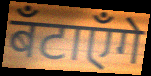
बँटाएँगे